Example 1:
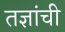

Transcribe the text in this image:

तज्ञांची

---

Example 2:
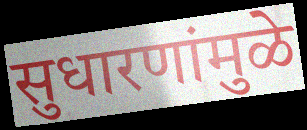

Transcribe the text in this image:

सुधारणांमुळे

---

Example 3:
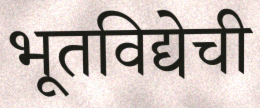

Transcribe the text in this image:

भूतविद्येची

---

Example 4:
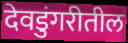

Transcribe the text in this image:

देवडुंगरीतील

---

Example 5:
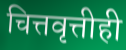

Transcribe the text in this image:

चित्तवृत्तीही